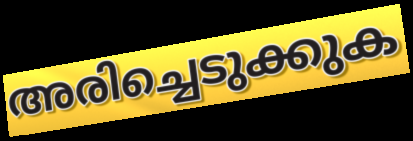
അരിച്ചെടുക്കുക